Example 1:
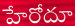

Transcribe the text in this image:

హేరోదూ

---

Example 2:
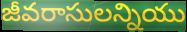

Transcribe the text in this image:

జీవరాసులన్నియు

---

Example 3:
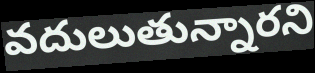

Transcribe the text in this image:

వదులుతున్నారని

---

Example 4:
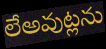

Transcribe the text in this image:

లేఅవుట్లను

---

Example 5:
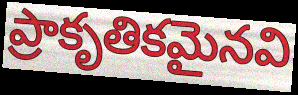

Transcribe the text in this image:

ప్రాకృతికమైనవి